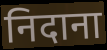
निदाना